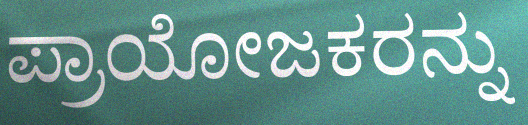
ಪ್ರಾಯೋಜಕರನ್ನು